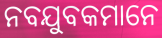
ନବଯୁବକମାନେ